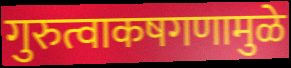
गुरुत्वाकषगणामुळे